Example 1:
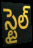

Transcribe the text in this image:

స్టైల్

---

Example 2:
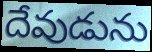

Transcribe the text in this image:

దేవుడును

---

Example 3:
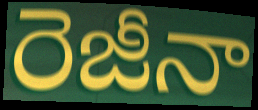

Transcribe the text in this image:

రెజీనా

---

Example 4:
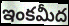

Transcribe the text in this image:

ఇంకమీద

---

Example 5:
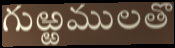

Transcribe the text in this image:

గుఱ్ఱములతొ